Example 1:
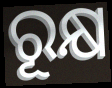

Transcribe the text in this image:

ରୂକ୍ଷ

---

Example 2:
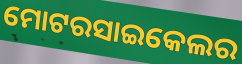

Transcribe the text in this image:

ମୋଟରସାଇକେଲର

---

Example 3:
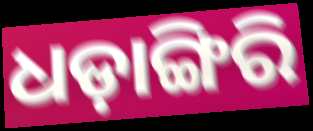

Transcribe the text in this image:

ଧଡ଼ାଙ୍ଗିରି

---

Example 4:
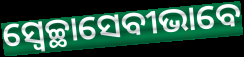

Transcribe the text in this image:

ସ୍ୱେଚ୍ଛାସେବୀଭାବେ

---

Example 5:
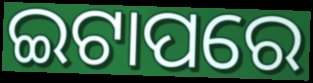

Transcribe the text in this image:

ଇଟାପରେ